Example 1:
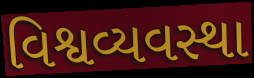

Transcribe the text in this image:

વિશ્વવ્યવસ્થા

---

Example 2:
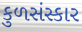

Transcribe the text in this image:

કુળસંસ્કાર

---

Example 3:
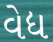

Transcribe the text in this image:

વેદ્ય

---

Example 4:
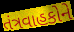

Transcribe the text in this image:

તંત્રવાહકોને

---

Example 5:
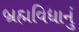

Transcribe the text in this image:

બ્રહ્મવિદ્યાનું